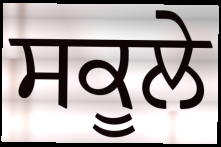
ਸਕੂਲੇ